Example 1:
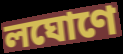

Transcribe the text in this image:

লঘোণে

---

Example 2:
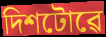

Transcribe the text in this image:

দিশটোৱে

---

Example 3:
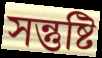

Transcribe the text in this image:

সন্তুষ্টি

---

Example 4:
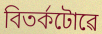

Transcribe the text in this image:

বিতৰ্কটোৱে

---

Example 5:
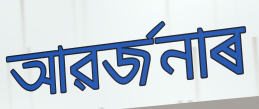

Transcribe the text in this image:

আৱৰ্জনাৰ